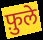
फ़ुले